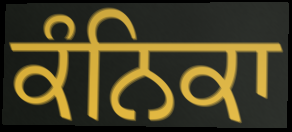
ਕੰਨਿਕਾ